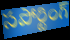
సపోర్టింగ్